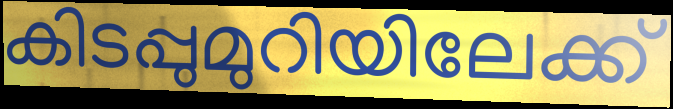
കിടപ്പുമുറിയിലേക്ക്